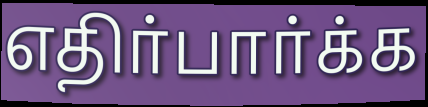
எதிர்பார்க்க